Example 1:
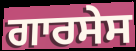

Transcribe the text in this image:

ਗਾਰਸੇਸ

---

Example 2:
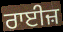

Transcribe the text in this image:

ਰਾਈਜ਼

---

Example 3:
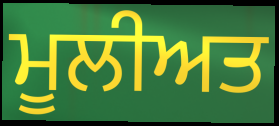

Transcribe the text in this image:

ਮੂਲੀਅਤ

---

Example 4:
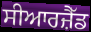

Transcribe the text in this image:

ਸੀਆਰਜ਼ੈੱਡ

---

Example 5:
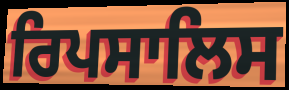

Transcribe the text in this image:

ਰਿਪਸਾਲਿਸ